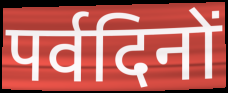
पर्वदिनों